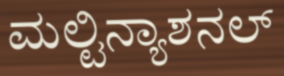
ಮಲ್ಟಿನ್ಯಾಶನಲ್